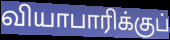
வியாபாரிக்குப்